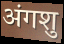
अंगशु